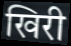
खिरी